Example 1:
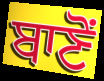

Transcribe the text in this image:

ਬਾਣੋਂ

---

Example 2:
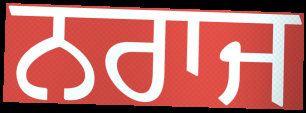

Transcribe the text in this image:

ਨਰਾਜ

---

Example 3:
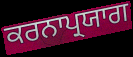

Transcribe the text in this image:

ਕਰਨਾਪ੍ਰਯਾਗ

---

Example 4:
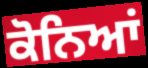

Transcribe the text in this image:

ਕੋਨਿਆਂ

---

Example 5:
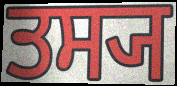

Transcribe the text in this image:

ਤਸ੍ਯ